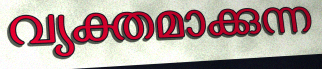
വ്യക്തമാക്കുന്ന